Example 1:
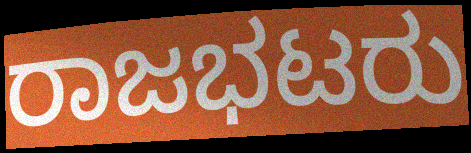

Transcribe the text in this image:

ರಾಜಭಟರು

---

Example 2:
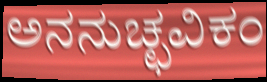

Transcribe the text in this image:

ಅನನುಚ್ಛವಿಕಂ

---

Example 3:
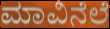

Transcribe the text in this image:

ಮಾವಿನೆಲೆ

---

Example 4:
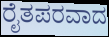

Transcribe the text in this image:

ರೈತಪರವಾದ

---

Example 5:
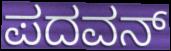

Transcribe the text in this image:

ಪದವನ್